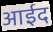
आईद